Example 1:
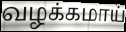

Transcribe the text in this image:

வழக்கமாய்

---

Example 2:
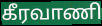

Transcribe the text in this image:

கீரவாணி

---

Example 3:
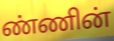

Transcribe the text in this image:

ண்ணின்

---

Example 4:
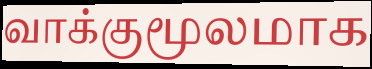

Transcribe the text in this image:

வாக்குமூலமாக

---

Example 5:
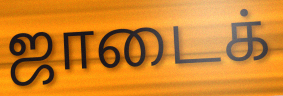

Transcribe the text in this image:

ஜாடைக்